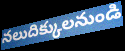
నలుదిక్కులనుండి